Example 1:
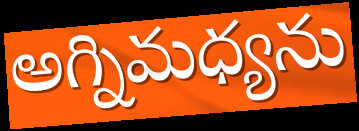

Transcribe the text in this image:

అగ్నిమధ్యను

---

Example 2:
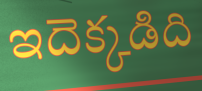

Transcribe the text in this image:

ఇదెక్కడిది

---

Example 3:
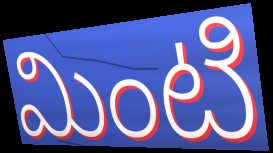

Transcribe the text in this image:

మింటి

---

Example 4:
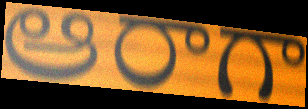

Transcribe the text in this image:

ఆరాగా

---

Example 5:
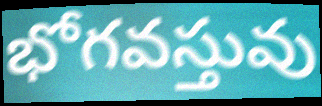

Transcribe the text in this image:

భోగవస్తువు